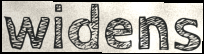
widens